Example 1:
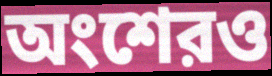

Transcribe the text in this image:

অংশেরও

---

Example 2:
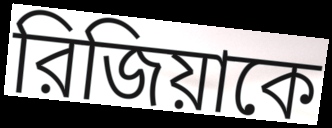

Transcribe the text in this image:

রিজিয়াকে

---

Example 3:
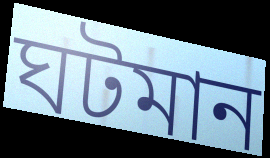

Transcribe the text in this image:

ঘটমান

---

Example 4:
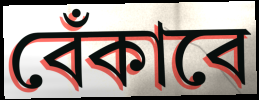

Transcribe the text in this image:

বেঁকাবে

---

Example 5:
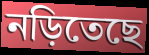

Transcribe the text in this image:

নড়িতেছে